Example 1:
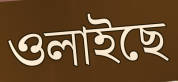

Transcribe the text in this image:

ওলাইছে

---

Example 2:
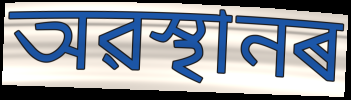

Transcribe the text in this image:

অৱস্থানৰ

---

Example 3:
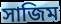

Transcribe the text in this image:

সাজিম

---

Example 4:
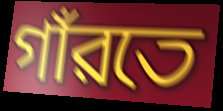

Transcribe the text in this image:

গাঁৱতে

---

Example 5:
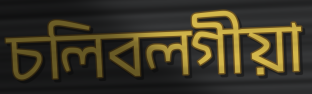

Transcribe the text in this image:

চলিবলগীয়া